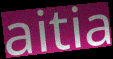
aitia